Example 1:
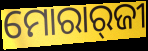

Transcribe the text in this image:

ମୋରାର୍‌ଜୀ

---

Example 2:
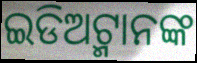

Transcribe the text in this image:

ଇଡିଅଟ୍ମାନଙ୍କ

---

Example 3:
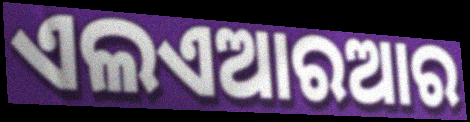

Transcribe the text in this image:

ଏଲଏଆରଆର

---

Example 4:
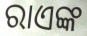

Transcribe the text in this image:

ରାଏଙ୍କ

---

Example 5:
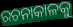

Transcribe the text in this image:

ରଚନାକାଳକୁ